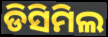
ଡିସିମିଲ